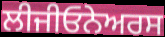
ਲੀਜੀਓਨੇਅਰਸ